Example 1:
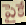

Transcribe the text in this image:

పైకే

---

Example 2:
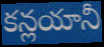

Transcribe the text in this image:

కన్లయానీ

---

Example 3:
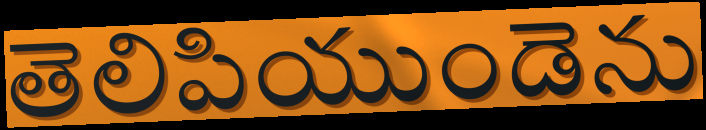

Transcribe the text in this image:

తెలిపియుండెను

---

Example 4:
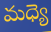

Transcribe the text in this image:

మధ్యె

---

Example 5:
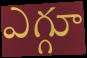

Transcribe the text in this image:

ఎగ్గూ